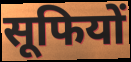
सूफियों